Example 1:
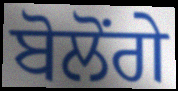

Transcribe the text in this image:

ਬੋਲੋਂਗੇ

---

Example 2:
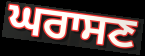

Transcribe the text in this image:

ਘਰਾਸਣ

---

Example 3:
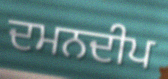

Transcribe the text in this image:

ਦਮਨਦੀਪ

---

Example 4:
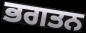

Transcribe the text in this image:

ਭਗਤਨ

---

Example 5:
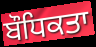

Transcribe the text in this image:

ਬੌਧਿਕਤਾ